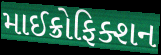
માઈક્રોફિક્શન